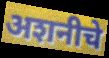
अशनीचे